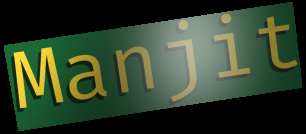
Manjit